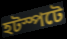
হটস্পটে